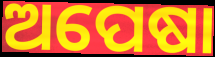
ଅପେଷା